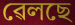
ৱেলছে